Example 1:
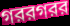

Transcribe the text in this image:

গররগরর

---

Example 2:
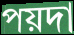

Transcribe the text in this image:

পয়দা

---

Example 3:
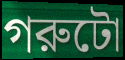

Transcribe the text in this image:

গরুটো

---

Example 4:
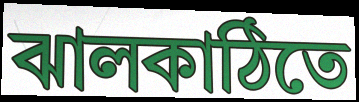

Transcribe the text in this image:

ঝালকাঠিতে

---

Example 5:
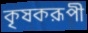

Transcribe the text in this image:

কৃষকরূপী